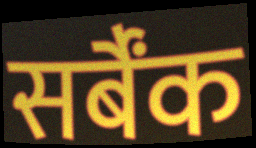
सर्बैंक